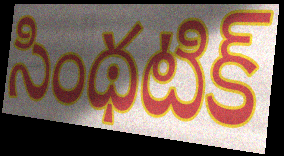
సింథటిక్